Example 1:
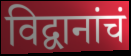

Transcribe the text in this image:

विद्वानांचं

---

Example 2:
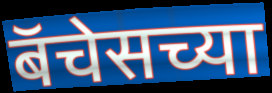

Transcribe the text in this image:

बॅचेसच्या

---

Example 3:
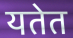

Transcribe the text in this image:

यतेत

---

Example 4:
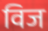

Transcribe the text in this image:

विज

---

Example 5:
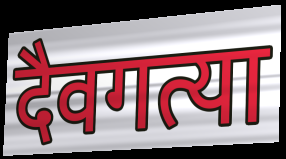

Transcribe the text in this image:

दैवगत्या